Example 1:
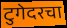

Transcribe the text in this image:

टुगेदरचा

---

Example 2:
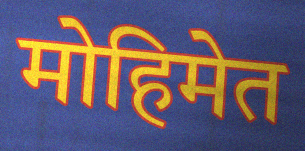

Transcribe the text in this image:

मोहिमेत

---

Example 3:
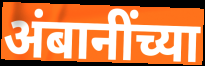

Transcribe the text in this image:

अंबानींच्या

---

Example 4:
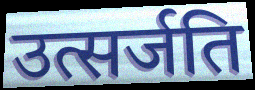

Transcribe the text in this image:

उत्सर्जति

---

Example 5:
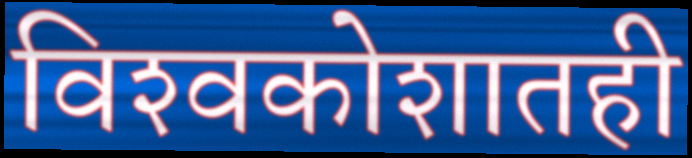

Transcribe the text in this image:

विश्वकोशातही